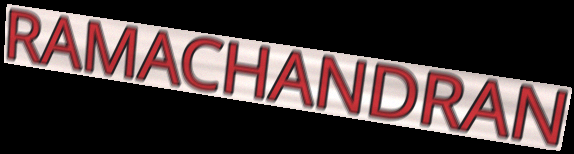
RAMACHANDRAN